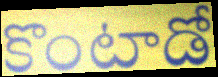
కొంటాడో